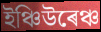
ইঞ্চিউৰেঞ্চ